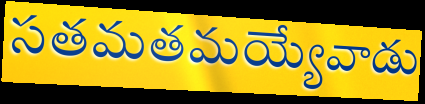
సతమతమయ్యేవాడు